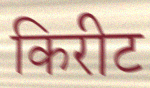
किरीट